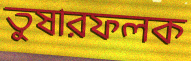
তুষারফলক